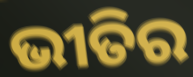
ଭୀତିର